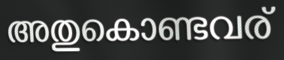
അതുകൊണ്ടവര്